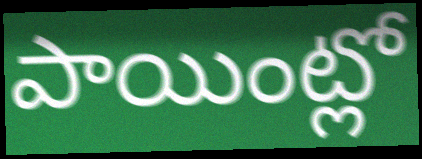
పాయింట్లో